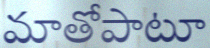
మాతోపాటూ